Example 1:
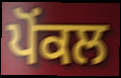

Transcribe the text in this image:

ਪੋਂਕਲ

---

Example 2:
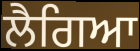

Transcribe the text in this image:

ਲੈਗਿਆ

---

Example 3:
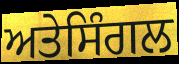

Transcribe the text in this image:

ਅਤੇਸਿੰਗਲ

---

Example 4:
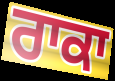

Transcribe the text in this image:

ਰਾਕਾ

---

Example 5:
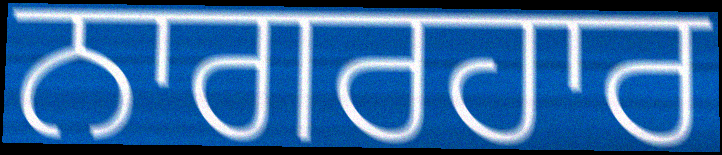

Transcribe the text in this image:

ਨਾਗਰਹਾਰ